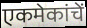
एकमेकांचें